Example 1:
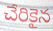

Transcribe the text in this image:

చేరికైన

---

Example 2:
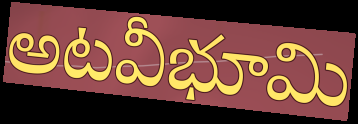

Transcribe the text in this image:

అటవీభూమి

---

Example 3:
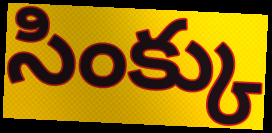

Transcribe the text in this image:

సింక్కు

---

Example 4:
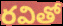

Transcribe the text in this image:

రవితో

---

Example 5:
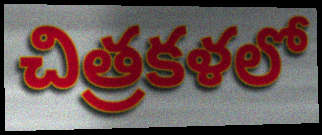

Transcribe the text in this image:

చిత్రకళలో